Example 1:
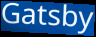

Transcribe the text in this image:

Gatsby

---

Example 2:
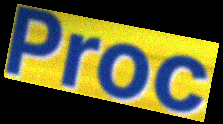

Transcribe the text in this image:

Proc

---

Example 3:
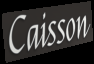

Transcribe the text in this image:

Caisson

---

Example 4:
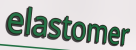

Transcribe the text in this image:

elastomer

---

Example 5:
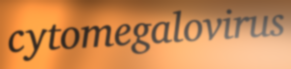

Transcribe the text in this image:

cytomegalovirus